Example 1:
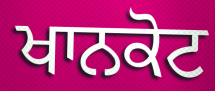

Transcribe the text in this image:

ਖਾਨਕੋਟ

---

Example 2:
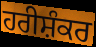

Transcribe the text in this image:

ਹਰੀਸ਼ੰਕਰ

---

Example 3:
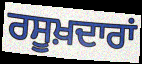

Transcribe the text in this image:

ਰਸੂਖ਼ਦਾਰਾਂ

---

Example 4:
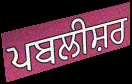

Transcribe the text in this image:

ਪਬਲੀਸ਼ਰ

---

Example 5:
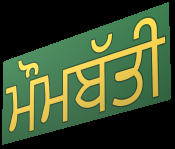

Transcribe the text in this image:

ਮੌਮਬੱਤੀ